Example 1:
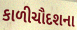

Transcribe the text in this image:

કાળીચૌદશના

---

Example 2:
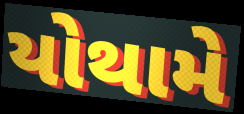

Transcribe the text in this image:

યોથામે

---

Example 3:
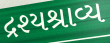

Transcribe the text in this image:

દ્રશ્યશ્રાવ્ય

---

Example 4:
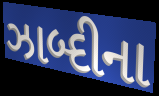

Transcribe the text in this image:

ઝાબ્દીના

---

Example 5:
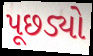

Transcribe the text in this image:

પૂછડ્યો